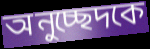
অনুচ্ছেদকে